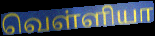
வெள்ளியா